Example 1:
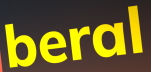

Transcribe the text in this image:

beral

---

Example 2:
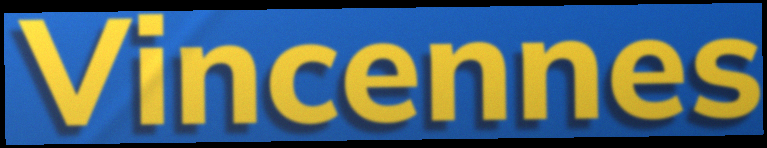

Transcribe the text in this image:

Vincennes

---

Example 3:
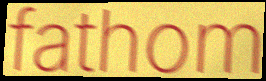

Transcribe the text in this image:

fathom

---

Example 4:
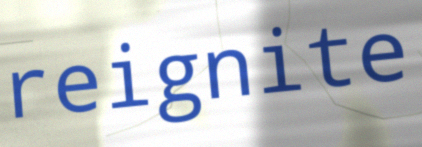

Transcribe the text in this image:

reignite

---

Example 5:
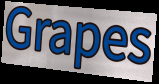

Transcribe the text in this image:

Grapes